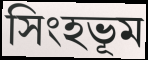
সিংহভূম